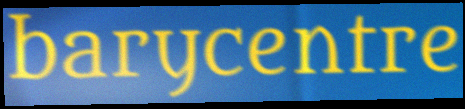
barycentre